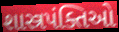
શાસ્ત્રપંક્તિઓ